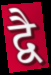
द्वै